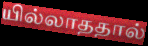
யில்லாததால்